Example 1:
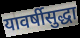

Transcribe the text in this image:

यावर्षीसुद्धा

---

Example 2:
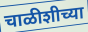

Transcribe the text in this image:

चाळीशीच्या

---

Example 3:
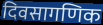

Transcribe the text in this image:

दिवसागणिक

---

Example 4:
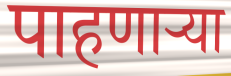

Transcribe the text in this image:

पाहणार्‍या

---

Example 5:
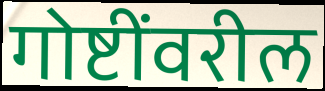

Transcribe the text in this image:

गोष्टींवरील